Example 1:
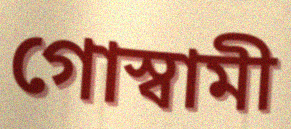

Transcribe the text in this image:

গোস্বামী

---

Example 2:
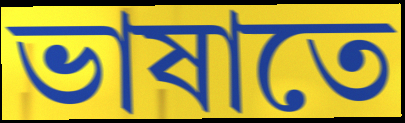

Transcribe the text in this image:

ভাষাতে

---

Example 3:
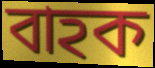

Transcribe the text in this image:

বাহক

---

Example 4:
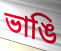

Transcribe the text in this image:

ভাঙি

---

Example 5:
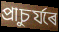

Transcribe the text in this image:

প্ৰাচুৰ্যৰে